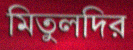
মিতুলদির